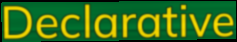
Declarative